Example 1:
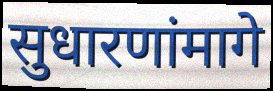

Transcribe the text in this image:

सुधारणांमागे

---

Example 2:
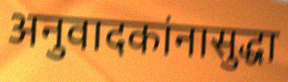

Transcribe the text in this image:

अनुवादकांनासुद्धा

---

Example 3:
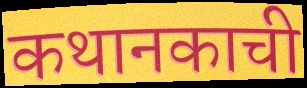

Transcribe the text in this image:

कथानकाची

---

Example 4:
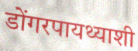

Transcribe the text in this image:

डोंगरपायथ्याशी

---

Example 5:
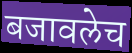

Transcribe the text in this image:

बजावलेच